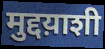
मुद्दय़ाशी